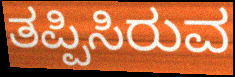
ತಪ್ಪಿಸಿರುವ